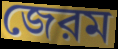
জেরম